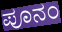
ಪೂನಂ